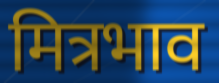
मित्रभाव